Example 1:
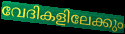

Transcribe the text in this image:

വേദികളിലേക്കും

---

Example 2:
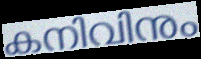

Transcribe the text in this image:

കനിവിനും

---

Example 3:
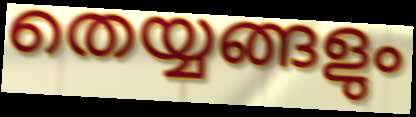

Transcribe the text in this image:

തെയ്യങ്ങളും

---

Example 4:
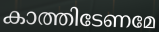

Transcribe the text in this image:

കാത്തിടേണമേ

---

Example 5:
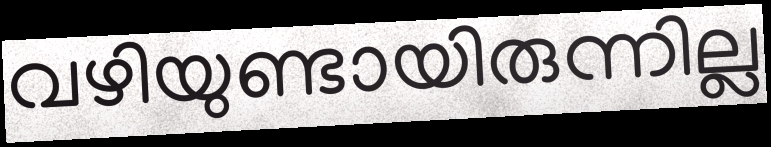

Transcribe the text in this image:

വഴിയുണ്ടായിരുന്നില്ല